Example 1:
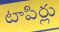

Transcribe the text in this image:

టాపిర్లు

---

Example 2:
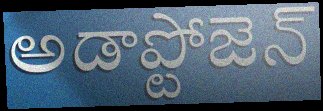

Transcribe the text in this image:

అడాప్టోజెన్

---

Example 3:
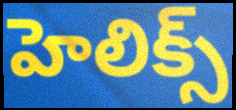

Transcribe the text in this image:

హెలిక్స్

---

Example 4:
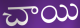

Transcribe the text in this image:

చాయి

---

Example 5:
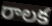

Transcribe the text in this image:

రాలక